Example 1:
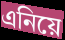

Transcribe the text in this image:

এনিয়ে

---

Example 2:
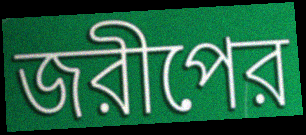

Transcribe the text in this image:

জরীপের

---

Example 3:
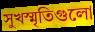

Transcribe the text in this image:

সুখস্মৃতিগুলো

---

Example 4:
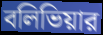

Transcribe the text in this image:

বলিভিয়ার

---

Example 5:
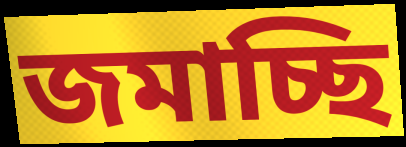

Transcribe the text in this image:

জমাচ্ছি